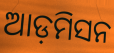
ଆଡ଼ମିସନ